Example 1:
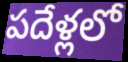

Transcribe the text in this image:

పదేళ్లలో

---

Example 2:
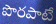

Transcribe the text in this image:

పొరపాటే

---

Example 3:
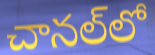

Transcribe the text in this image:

చానల్‌లో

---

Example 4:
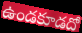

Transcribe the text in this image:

ఉండకూడదో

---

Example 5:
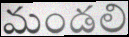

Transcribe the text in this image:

మండలి